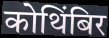
कोथिंबिर